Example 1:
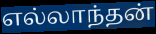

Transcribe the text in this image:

எல்லாந்தன்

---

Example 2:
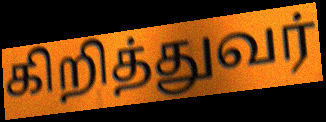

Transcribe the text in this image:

கிறித்துவர்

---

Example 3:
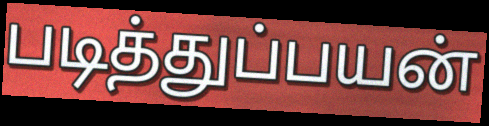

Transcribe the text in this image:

படித்துப்பயன்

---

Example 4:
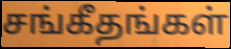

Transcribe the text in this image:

சங்கீதங்கள்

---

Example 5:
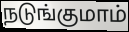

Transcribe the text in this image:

நடுங்குமாம்